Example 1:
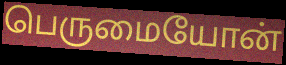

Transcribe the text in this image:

பெருமையோன்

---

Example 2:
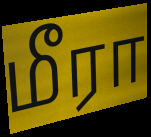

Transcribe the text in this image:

மீரா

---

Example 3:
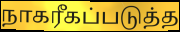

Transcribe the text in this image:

நாகரீகப்படுத்த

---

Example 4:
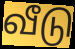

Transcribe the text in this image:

வீடு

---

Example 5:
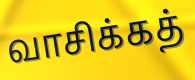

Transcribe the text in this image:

வாசிக்கத்